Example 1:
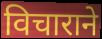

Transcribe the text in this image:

विचाराने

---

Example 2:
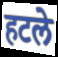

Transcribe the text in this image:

हटले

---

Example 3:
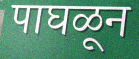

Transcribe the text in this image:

पाघळून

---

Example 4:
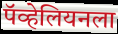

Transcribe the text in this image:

पॅव्हेलियनला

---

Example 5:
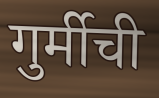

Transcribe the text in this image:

गुर्मीची